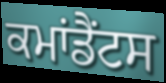
ਕਮਾਂਡੈਂਟਸ